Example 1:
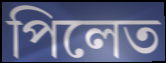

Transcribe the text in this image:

পিলেত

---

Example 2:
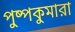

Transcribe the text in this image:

পুষ্পকুমারা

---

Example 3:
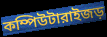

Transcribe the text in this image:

কম্পিউটারাইজড়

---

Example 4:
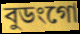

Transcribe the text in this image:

বুডংগো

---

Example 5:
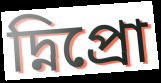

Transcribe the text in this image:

দ্নিপ্রো